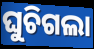
ଘୁଚିଗଲା